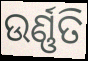
ଉର୍ଣ୍ଣତି